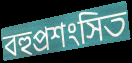
বহুপ্রশংসিত